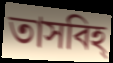
তাসবিহ্